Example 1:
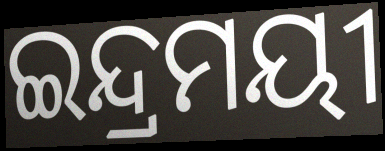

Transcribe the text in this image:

ଇନ୍ଦ୍ରମୟୀ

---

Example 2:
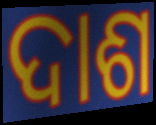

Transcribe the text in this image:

ଦାଶ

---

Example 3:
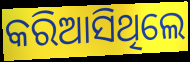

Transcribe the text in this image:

କରିଆସିଥିଲେ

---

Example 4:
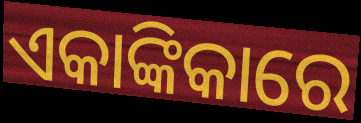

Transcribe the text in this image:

ଏକାଙ୍କିକାରେ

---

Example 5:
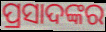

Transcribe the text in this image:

ପ୍ରସାଦଙ୍କର